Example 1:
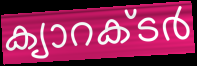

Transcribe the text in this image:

ക്യാറക്ടർ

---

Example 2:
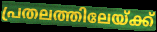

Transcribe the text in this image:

പ്രതലത്തിലേയ്ക്ക്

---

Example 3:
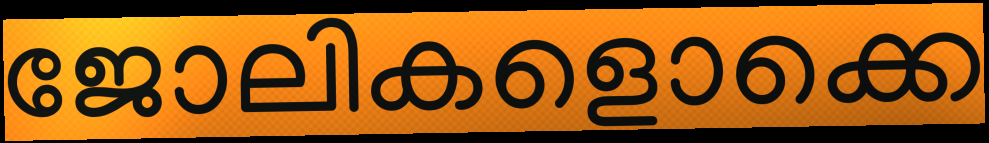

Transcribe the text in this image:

ജോലികളൊക്കെ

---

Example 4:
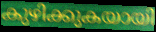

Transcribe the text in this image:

കുഴിക്കുകയായി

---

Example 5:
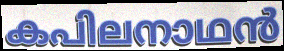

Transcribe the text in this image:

കപിലനാഥൻ